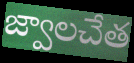
జ్వాలచేత